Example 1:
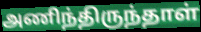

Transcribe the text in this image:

அணிந்திருந்தாள்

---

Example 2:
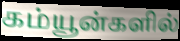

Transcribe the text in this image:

கம்யூன்களில்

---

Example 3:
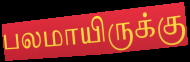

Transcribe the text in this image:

பலமாயிருக்கு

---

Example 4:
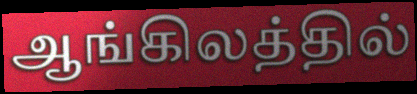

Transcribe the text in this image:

ஆங்கிலத்தில்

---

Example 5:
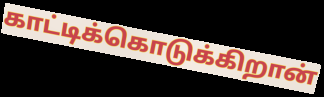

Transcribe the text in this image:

காட்டிக்கொடுக்கிறான்